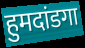
हुमदांडगा